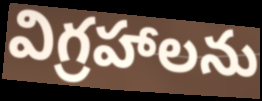
విగ్రహాలను